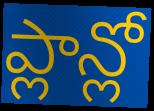
ప్లాన్లో